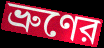
ভ্রুণের